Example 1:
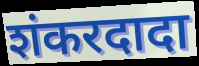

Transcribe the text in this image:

शंकरदादा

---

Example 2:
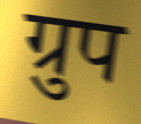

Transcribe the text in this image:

ग्रुप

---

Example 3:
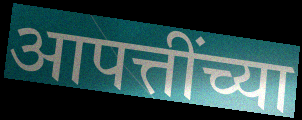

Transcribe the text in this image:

आपत्तींच्या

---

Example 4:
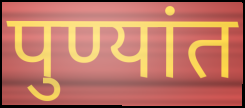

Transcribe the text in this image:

पुण्यांत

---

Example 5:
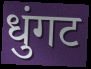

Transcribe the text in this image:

धुंगट